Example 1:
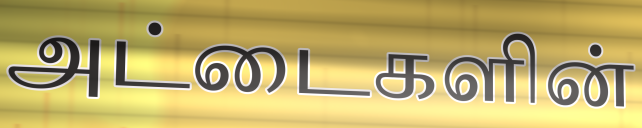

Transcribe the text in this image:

அட்டைகளின்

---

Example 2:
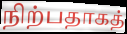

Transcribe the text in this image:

நிற்பதாகத்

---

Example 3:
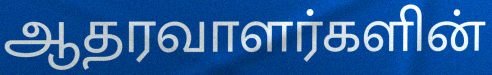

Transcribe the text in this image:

ஆதரவாளர்களின்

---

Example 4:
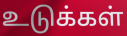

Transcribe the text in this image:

உடுக்கள்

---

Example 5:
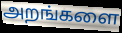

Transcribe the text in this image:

அறங்களை